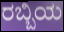
ರಬ್ಬಿಯ